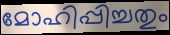
മോഹിപ്പിച്ചതും